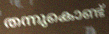
തന്നുകൊണ്ട്